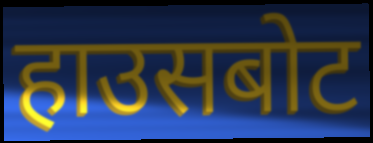
हाउसबोट